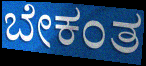
ಬೇಕಂತ